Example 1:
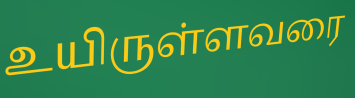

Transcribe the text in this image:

உயிருள்ளவரை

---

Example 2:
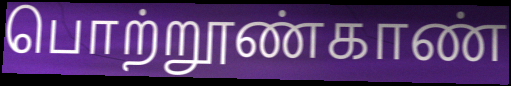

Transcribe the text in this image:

பொற்றூண்காண்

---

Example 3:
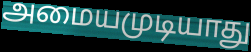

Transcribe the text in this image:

அமையமுடியாது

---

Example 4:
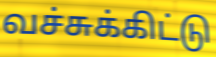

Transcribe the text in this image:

வச்சுக்கிட்டு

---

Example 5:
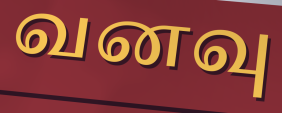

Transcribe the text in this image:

வனவு